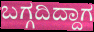
ಬಗ್ಗದಿದ್ದಾಗ